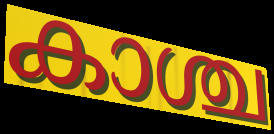
കാശ്ച